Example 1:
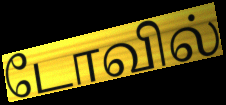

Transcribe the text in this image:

டோவில்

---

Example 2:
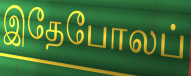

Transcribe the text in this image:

இதேபோலப்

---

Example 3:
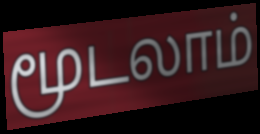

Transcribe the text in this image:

மூடலாம்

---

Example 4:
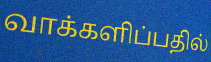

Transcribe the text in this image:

வாக்களிப்பதில்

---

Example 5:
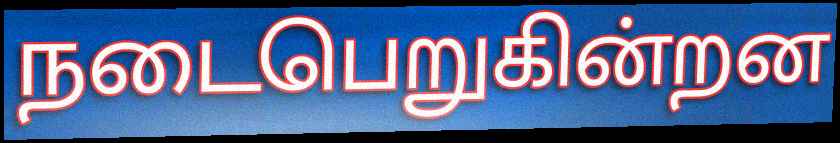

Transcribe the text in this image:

நடைபெறுகின்றன